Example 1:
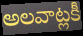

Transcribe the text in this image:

అలవాట్లకీ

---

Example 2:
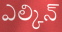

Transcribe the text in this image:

ఎల్కిన్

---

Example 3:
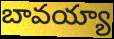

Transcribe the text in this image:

బావయ్యా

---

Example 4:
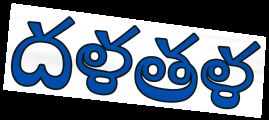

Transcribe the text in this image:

దళతళ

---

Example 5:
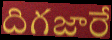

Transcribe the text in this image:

దిగజారే